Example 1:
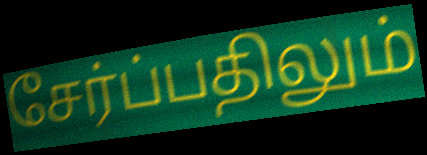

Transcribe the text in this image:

சேர்ப்பதிலும்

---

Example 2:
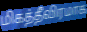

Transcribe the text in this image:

மிகத்தீவிரமாக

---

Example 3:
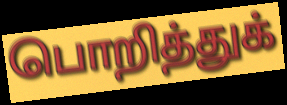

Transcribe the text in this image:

பொறித்துக்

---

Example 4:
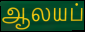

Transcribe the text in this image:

ஆலயப்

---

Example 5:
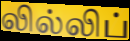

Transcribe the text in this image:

லில்லிப்